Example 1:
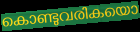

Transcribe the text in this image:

കൊണ്ടുവരികയൊ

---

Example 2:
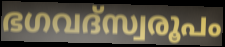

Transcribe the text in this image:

ഭഗവദ്സ്വരൂപം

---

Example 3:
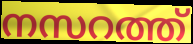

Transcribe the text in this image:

നസറത്ത്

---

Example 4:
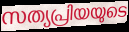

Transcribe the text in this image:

സത്യപ്രിയയുടെ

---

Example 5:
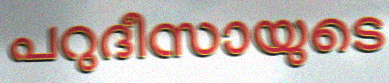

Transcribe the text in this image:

പറുദീസായുടെ